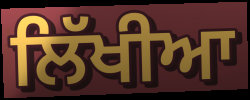
ਲਿੱਖੀਆ